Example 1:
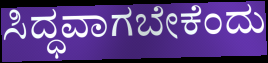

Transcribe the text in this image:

ಸಿದ್ಧವಾಗಬೇಕೆಂದು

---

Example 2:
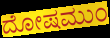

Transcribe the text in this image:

ದೋಷಮುಂ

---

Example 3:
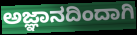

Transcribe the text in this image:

ಅಜ್ಞಾನದಿಂದಾಗಿ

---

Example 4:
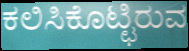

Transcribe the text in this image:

ಕಲಿಸಿಕೊಟ್ಟಿರುವ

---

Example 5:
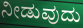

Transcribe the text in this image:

ನೀಡುವುದು